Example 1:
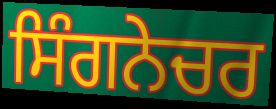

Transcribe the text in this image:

ਸਿੰਗਨੇਚਰ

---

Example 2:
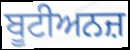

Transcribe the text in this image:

ਬੂਟੀਅਨਜ਼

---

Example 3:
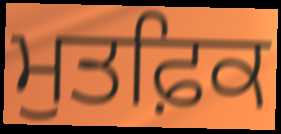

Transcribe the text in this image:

ਮੁਤਫ਼ਿਕ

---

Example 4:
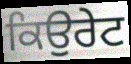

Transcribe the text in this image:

ਕਿਉਰੇਟ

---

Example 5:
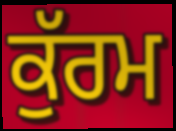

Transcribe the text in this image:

ਕੁੱਰਮ